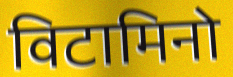
विटामिनो